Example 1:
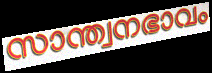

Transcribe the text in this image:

സാന്ത്വനഭാവം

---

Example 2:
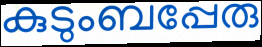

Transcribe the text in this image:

കുടുംബപ്പേരു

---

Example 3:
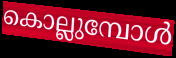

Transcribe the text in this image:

കൊല്ലുമ്പോൾ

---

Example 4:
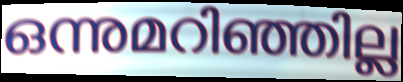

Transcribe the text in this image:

ഒന്നുമറിഞ്ഞില്ല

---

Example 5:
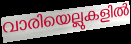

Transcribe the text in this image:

വാരിയെല്ലുകളിൽ